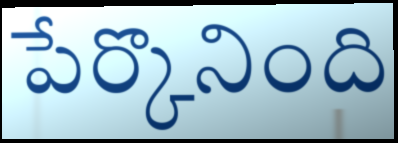
పేర్కొనింది